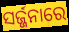
ସର୍ଜ୍ଜନାରେ